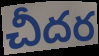
చీదర